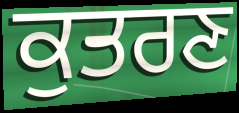
ਕੁਤਰਣ